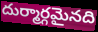
దుర్మార్గమైనది